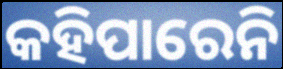
କହିପାରେନି